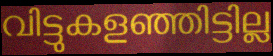
വിട്ടുകളഞ്ഞിട്ടില്ല